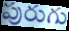
పురుగు